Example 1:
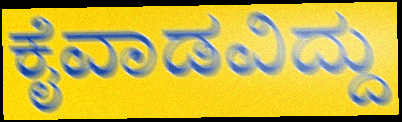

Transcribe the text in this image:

ಕೈವಾಡವಿದ್ದು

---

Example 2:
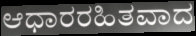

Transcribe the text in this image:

ಆಧಾರರಹಿತವಾದ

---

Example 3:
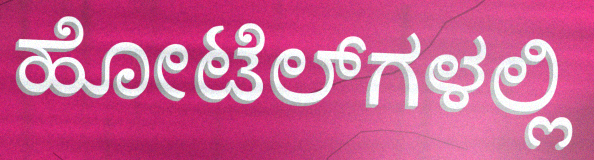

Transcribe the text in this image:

ಹೋಟೆಲ್‍ಗಳಲ್ಲಿ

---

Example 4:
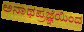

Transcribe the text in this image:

ಅನಾಥಪ್ರಜ್ಞೆಯಿಂದ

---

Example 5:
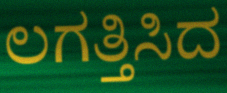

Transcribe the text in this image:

ಲಗತ್ತಿಸಿದ